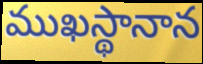
ముఖస్థానాన